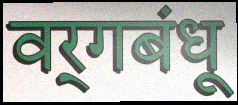
वर्गबंधू